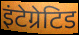
इंटेग्रेटिड